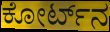
ಕೋರ್ಟ್‍ನ